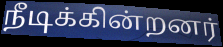
நீடிக்கின்றனர்